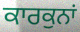
ਕਾਰਕੁਨਾਂ